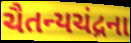
ચૈતન્યચંદ્રના